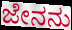
ಜೇನನು